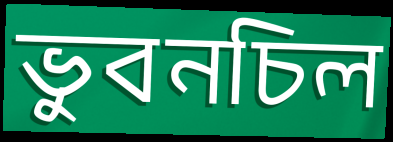
ভুবনচিল